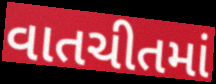
વાતચીતમાં